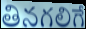
తినగలిగే